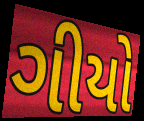
ગીયો